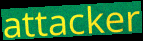
attacker